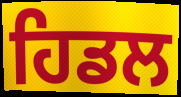
ਹਿਡਲ